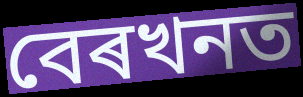
বেৰখনত